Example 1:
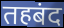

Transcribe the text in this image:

तहबंद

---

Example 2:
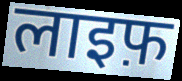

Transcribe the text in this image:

लाइफ़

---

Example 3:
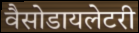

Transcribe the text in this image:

वैसोडायलेटरी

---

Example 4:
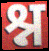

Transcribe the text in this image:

श्न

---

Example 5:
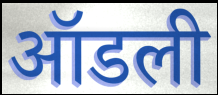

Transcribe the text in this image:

ऑडली